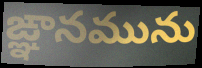
ఙ్ఞానమును